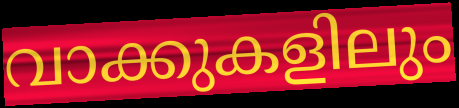
വാക്കുകളിലും